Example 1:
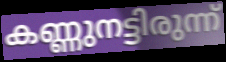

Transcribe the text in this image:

കണ്ണുനട്ടിരുന്ന്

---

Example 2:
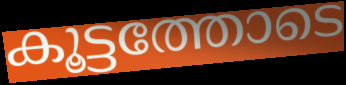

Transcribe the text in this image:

കൂട്ടത്തോടെ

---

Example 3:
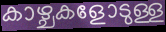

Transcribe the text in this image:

കാഴ്ചകളോടുള്ള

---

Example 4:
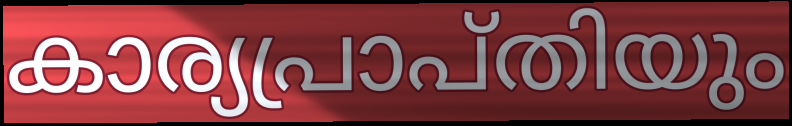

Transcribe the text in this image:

കാര്യപ്രാപ്തിയും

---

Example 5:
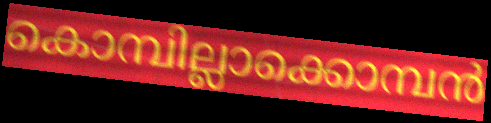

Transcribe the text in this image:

കൊമ്പില്ലാക്കൊമ്പൻ